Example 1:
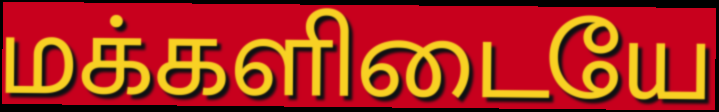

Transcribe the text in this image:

மக்களிடையே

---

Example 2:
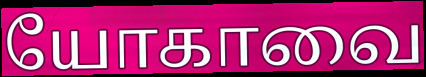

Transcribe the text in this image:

யோகாவை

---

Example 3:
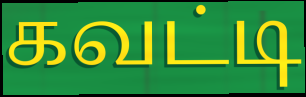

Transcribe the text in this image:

கவட்டி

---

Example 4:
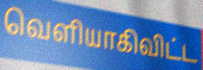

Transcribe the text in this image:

வெளியாகிவிட்ட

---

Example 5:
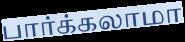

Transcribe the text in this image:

பார்க்கலாமா